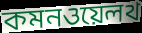
কমনওয়েলথ